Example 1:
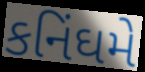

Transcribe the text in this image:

કનિંઘમે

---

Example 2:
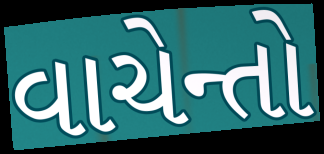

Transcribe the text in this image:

વાચેન્તો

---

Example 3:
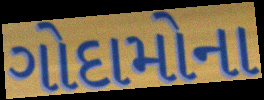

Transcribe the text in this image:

ગોદામોના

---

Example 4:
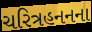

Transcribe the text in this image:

ચરિત્રહનનના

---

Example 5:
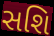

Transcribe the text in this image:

સશિ